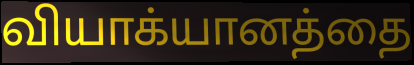
வியாக்யானத்தை